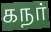
கநர்